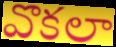
వొకలా